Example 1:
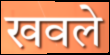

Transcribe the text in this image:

खवले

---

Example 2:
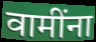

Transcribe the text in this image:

वामींना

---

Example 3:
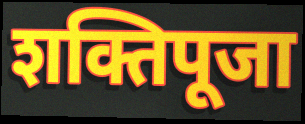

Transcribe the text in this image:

शक्तिपूजा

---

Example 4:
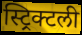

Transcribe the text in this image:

स्ट्रिक्टली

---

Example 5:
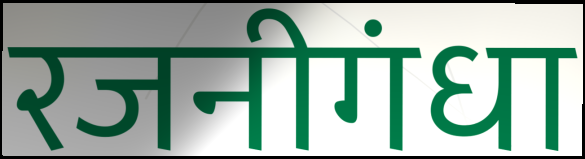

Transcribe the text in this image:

रजनीगंधा